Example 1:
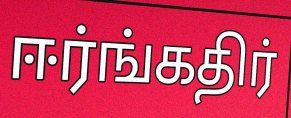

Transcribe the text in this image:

ஈர்ங்கதிர்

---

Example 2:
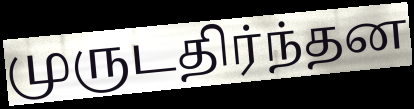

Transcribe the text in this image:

முருடதிர்ந்தன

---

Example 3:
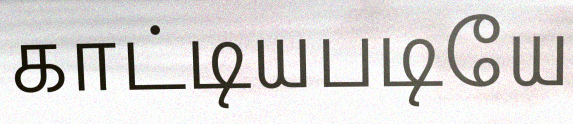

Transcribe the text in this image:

காட்டியபடியே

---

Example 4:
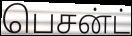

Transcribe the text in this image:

பெசன்ட்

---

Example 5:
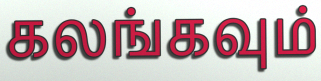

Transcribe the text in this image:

கலங்கவும்